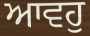
ਆਵਹੁ